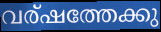
വര്ഷത്തേക്കു